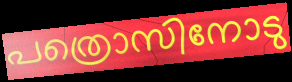
പത്രൊസിനോടു